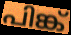
പിങ്ക്